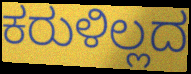
ಕರುಳಿಲ್ಲದ